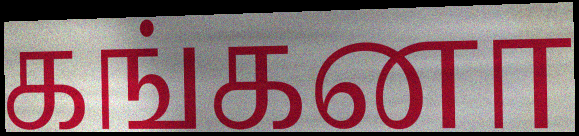
கங்கனா